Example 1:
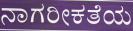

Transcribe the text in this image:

ನಾಗರೀಕತೆಯ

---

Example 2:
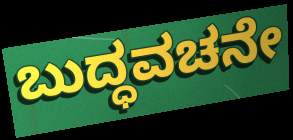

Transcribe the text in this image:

ಬುದ್ಧವಚನೇ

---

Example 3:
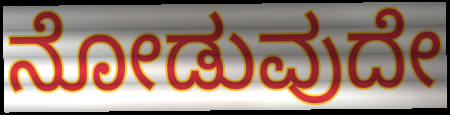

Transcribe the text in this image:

ನೋಡುವುದೇ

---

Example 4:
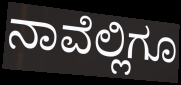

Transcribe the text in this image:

ನಾವೆಲ್ಲಿಗೂ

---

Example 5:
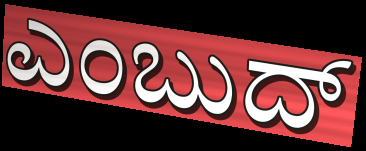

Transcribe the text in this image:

ಎಂಬುದ್